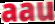
aau